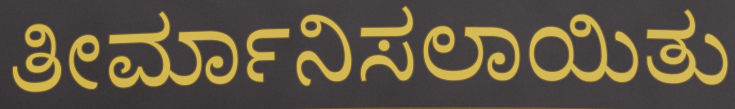
ತೀರ್ಮಾನಿಸಲಾಯಿತು